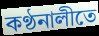
কণ্ঠনালীতে